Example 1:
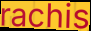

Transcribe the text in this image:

rachis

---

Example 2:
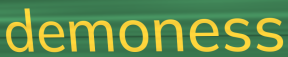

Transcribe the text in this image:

demoness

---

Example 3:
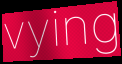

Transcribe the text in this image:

vying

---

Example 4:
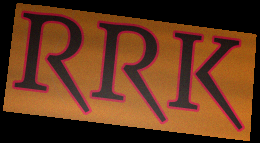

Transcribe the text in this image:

RRK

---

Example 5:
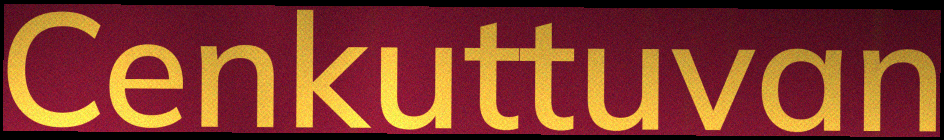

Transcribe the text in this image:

Cenkuttuvan